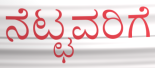
ನೆಟ್ಟವರಿಗೆ